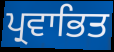
ਪ੍ਰਵਾਭਿਤ